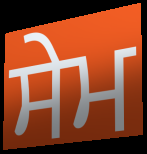
ਸੇਮ